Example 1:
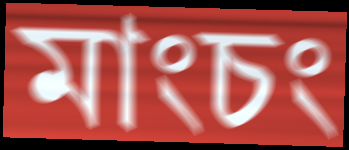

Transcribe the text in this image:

মাংচং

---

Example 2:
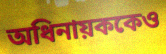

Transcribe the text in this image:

অধিনায়ককেও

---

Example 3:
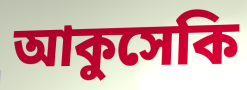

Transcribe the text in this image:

আকুসেকি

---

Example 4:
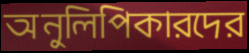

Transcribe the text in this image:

অনুলিপিকারদের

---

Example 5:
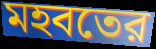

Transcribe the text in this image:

মহবতের